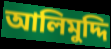
আলিমুদ্দি